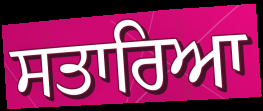
ਸਤਾਰਿਆ